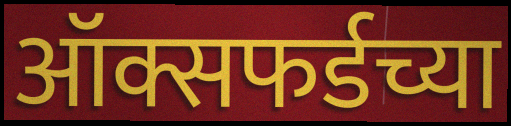
ऑक्सफर्डच्या